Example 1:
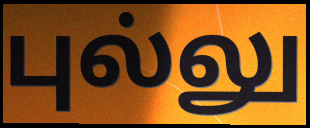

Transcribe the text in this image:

புல்லு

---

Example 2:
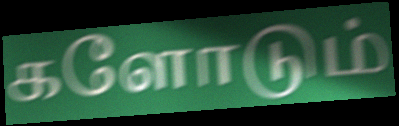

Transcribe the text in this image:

களோடும்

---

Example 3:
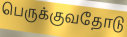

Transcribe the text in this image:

பெருக்குவதோடு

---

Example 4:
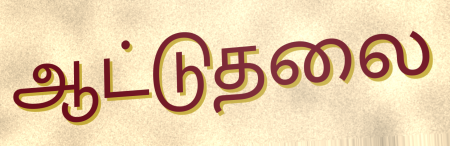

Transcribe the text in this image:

ஆட்டுதலை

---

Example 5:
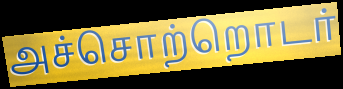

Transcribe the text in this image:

அச்சொற்றொடர்